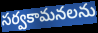
సర్వకామనలను